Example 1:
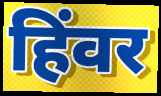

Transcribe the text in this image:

हिंवर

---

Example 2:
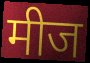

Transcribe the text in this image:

मीज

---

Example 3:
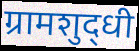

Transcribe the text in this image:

ग्रामशुद्धी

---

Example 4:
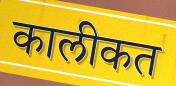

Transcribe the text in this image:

कालीकत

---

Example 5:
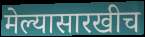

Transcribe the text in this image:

मेल्यासारखीच